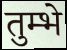
तुम्भे